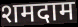
शमदाम